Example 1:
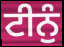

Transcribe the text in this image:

ਟੀਨੁੰ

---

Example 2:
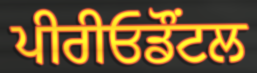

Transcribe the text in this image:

ਪੀਰੀਓਡੌਂਟਲ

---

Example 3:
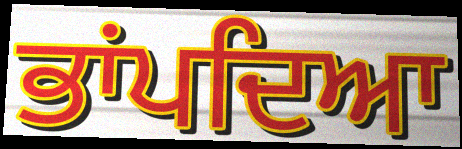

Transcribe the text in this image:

ਭਾਂਪਦਿਆ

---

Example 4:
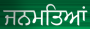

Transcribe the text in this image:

ਜਨਮਤਿਆਂ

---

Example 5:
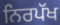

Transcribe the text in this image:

ਨਿਰਪੱਖ